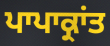
ਪਾਪਾਕ੍ਰਾਂਤ